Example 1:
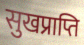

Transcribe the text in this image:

सुखप्राप्ति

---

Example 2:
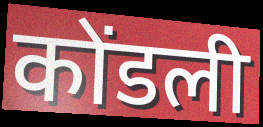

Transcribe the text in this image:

कोंडली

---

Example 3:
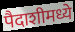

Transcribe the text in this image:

पैदाशीमध्ये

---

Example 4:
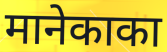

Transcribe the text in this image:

मानेकाका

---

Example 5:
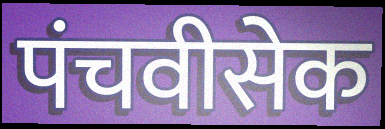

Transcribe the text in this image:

पंचवीसेक